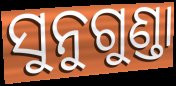
ସୁନୁଗୁଣ୍ଡା